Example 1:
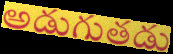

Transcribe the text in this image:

అడుగుతడు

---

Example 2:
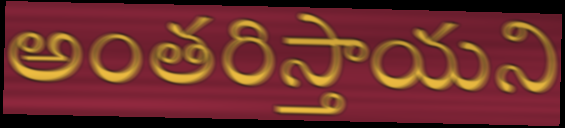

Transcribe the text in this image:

అంతరిస్తాయని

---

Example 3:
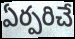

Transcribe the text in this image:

ఏర్పరిచే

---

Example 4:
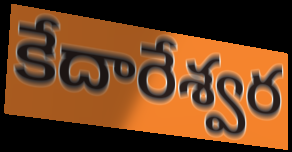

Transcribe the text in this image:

కేదారేశ్వర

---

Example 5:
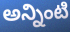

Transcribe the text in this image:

అన్నింటి